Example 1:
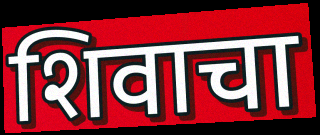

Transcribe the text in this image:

शिवाचा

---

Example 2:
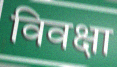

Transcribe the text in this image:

विवक्षा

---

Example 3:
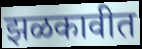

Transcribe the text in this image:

झळकावीत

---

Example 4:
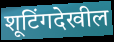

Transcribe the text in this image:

शूटिंगदेखील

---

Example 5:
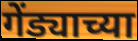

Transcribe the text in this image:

गेंड्याच्या